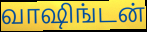
வாஷிங்டன்